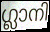
ഗ്ലാനി